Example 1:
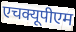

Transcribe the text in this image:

एचक्यूपीएम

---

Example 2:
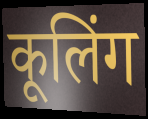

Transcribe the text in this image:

कूलिंग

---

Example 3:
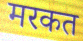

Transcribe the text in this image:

मरकत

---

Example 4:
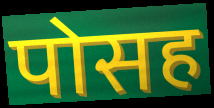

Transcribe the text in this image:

पोसह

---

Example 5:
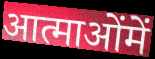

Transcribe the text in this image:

आत्माओंमें